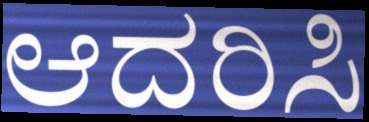
ಆದರಿಸಿ